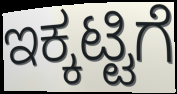
ಇಕ್ಕಟ್ಟಿಗೆ